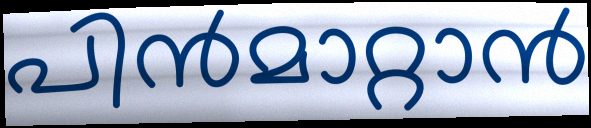
പിൻമാറ്റാൻ